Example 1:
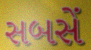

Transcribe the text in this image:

સબસેં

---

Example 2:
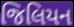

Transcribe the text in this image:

જિલિયન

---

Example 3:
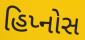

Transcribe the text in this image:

હિપ્નોસ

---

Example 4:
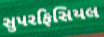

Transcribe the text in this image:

સુપરફિસિયલ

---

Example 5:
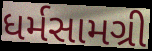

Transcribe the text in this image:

ધર્મસામગ્રી